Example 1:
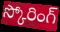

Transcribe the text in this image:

స్కోరింగ్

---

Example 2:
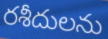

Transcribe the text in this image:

రశీదులను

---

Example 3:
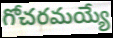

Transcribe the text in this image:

గోచరమయ్యే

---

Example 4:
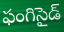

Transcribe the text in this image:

ఫంగిసైడ్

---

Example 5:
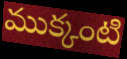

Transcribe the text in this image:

ముక్కంటి